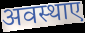
अवस्थाए